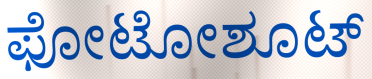
ಫೋಟೋಶೂಟ್